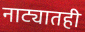
नाट्यातही